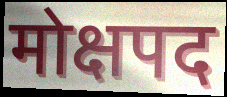
मोक्षपद